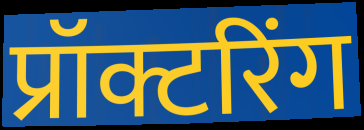
प्रॉक्टरिंग